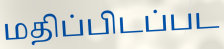
மதிப்பிடப்பட